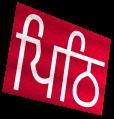
ਪਿਠਿ